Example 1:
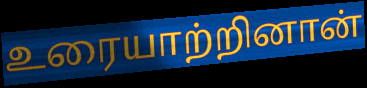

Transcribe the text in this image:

உரையாற்றினான்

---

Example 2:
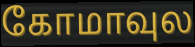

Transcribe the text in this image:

கோமாவுல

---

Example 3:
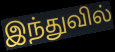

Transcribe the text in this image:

இந்துவில்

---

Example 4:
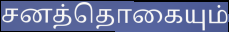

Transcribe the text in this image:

சனத்தொகையும்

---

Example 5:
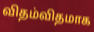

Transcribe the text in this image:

விதம்விதமாக